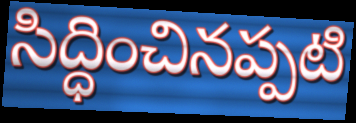
సిద్ధించినప్పటి